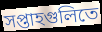
সপ্তাহগুলিতে